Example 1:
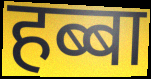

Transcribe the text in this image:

हब्‍बा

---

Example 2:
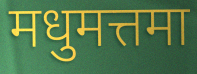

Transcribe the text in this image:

मधुमत्तमा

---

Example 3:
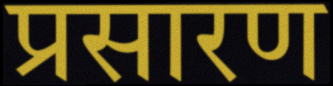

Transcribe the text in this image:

प्रसारण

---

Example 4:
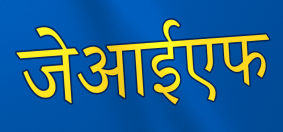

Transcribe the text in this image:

जेआईएफ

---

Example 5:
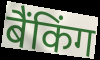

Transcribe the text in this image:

बैंकिंग